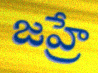
జహ్రే